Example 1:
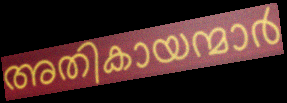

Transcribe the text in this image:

അതികായന്മാർ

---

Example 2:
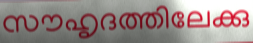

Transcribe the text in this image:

സൗഹൃദത്തിലേക്കു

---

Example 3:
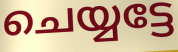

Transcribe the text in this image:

ചെയ്യട്ടേ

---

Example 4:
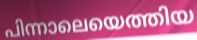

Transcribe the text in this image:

പിന്നാലെയെത്തിയ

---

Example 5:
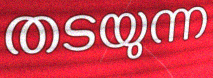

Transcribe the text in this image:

തടയുന്ന